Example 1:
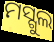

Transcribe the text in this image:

ମସ୍ଗୁଲ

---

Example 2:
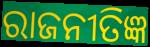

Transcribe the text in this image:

ରାଜନୀତିଜ୍ଞ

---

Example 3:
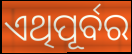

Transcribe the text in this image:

ଏଥିପୂର୍ବର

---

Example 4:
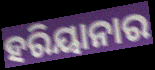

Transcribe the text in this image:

ହରିୟାନାର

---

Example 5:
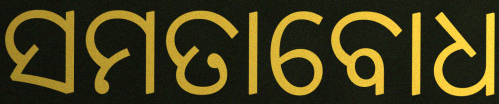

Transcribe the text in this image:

ସମତାବୋଧ